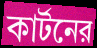
কার্টনের